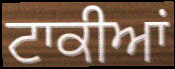
ਟਾਕੀਆਂ